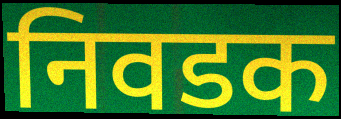
निवडक